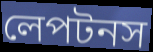
লেপটনস